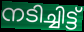
നടിച്ചിട്ട്